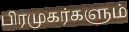
பிரமுகர்களும்